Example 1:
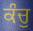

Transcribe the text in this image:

ਕੰਚੁ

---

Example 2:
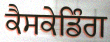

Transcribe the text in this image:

ਕੈਸਕੇਡਿੰਗ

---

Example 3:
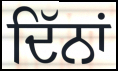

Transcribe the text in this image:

ਦਿੱਨਾਂ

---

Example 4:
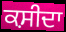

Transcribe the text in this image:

ਕ਼ਸੀਦਾ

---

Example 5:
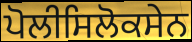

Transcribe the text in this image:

ਪੋਲੀਸਿਲੋਕਸੇਨ